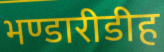
भण्डारीडीह